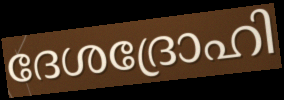
ദേശദ്രോഹി